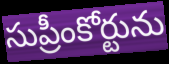
సుప్రీంకోర్టును